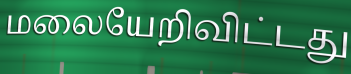
மலையேறிவிட்டது